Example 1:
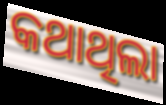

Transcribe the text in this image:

କଥାଥିଲା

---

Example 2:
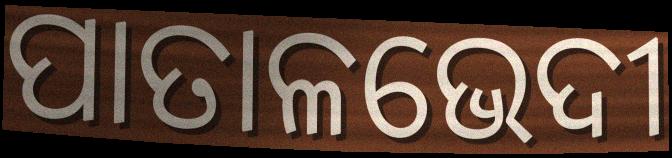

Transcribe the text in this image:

ପାତାଳଭେଦୀ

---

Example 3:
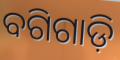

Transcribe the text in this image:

ବଗିଗାଡ଼ି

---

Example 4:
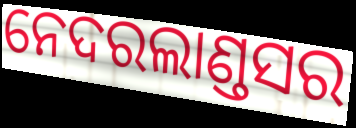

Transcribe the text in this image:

ନେଦରଲାଣ୍ଡସର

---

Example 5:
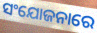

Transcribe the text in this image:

ସଂଯୋଜନାରେ